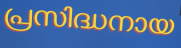
പ്രസിദ്ധനായ